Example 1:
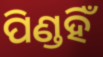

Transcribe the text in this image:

ପିଣ୍ଡହିଁ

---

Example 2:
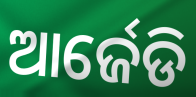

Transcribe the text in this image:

ଆର୍ଜେଡି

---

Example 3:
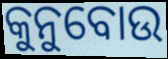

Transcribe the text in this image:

କୁନୁବୋଉ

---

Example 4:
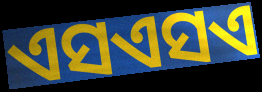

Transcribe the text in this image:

ଏସଏସଏ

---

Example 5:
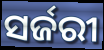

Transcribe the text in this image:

ସର୍ଜରୀ